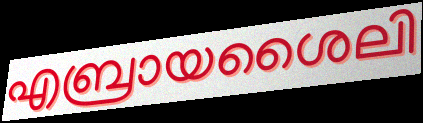
എബ്രായശൈലി